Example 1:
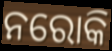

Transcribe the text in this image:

ନରୋକି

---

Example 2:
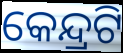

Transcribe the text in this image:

କେନ୍ଦ୍ରଟି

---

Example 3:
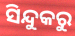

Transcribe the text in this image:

ସିନ୍ଦୁକରୁ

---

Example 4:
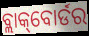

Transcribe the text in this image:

ବ୍ଲାକ୍‌ବୋର୍ଡର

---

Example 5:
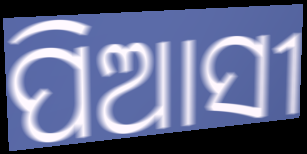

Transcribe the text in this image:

ପିଆସୀ